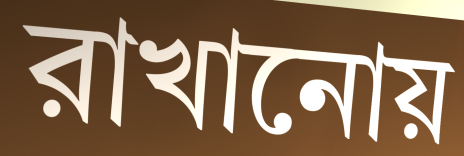
রাখানোয়